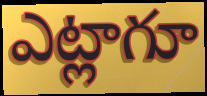
ఎట్లాగూ